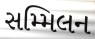
સમ્મિલન